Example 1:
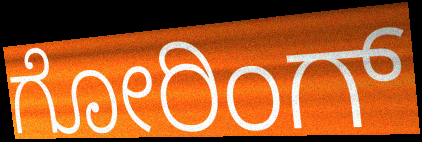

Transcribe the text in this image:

ಗೋರಿಂಗ್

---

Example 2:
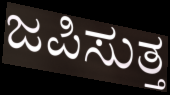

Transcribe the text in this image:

ಜಪಿಸುತ್ತ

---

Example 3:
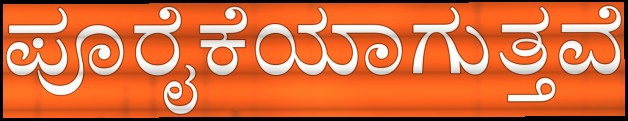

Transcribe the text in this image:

ಪೂರೈಕೆಯಾಗುತ್ತವೆ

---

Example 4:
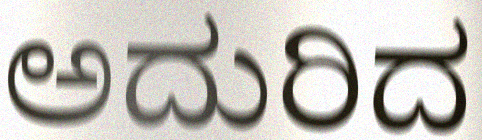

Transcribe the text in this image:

ಅದುರಿದ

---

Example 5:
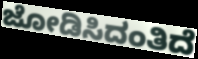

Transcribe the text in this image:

ಜೋಡಿಸಿದಂತಿದೆ